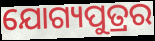
ଯୋଗ୍ୟପୁତ୍ରର